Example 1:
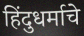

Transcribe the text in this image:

हिंदुधर्माचे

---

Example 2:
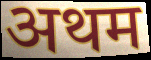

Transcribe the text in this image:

अथम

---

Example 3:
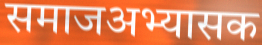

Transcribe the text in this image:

समाजअभ्यासक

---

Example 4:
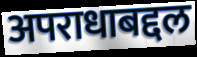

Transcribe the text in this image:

अपराधाबद्दल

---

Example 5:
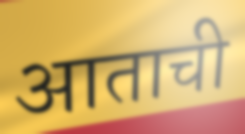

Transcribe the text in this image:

आताची